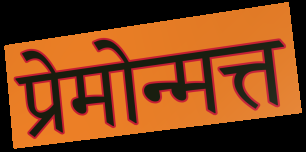
प्रेमोन्मत्त